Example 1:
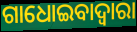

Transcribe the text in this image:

ଗାଧୋଇବାଦ୍ଵାରା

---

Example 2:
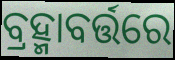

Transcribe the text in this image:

ବ୍ରହ୍ମାବର୍ତ୍ତରେ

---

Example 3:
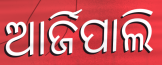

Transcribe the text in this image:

ଆର୍ଜିପାଲି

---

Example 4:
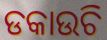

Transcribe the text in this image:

ଡକାଉଚି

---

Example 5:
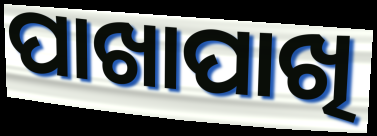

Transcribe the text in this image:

ପାଖାପାଖି